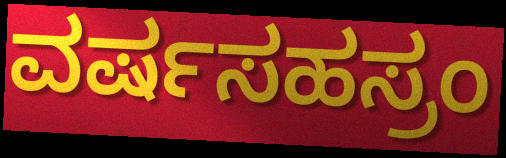
ವರ್ಷಸಹಸ್ರಂ